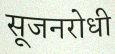
सूजनरोधी